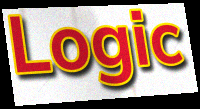
Logic